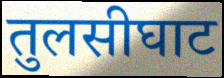
तुलसीघाट